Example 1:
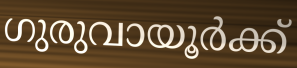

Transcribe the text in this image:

ഗുരുവായൂർക്ക്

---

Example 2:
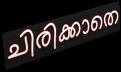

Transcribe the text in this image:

ചിരിക്കാതെ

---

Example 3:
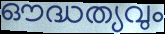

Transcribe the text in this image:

ഔദ്ധത്യവും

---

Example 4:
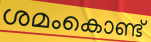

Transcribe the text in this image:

ശമംകൊണ്ട്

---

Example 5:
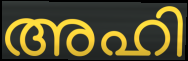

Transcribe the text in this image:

അഹി